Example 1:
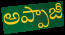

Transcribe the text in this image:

అప్పాజీ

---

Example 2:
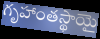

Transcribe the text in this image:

గృహాంతస్థాయై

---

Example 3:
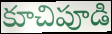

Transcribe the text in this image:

కూచిపూడి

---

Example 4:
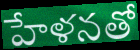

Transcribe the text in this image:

హేళనతో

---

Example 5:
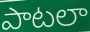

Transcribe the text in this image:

పాటలా